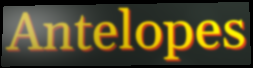
Antelopes